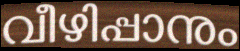
വീഴിപ്പാനും